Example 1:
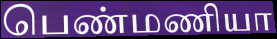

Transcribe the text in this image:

பெண்மணியா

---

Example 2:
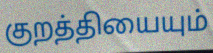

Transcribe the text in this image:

குறத்தியையும்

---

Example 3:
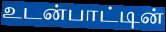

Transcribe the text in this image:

உடன்பாட்டின்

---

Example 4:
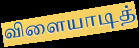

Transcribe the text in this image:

விளையாடித்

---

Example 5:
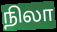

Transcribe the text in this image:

நிலா